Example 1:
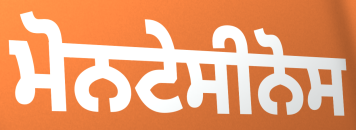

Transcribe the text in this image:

ਮੋਨਟੇਸੀਨੋਸ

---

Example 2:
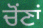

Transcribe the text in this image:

ਚੋਂਣਾਂ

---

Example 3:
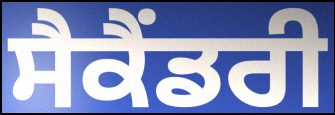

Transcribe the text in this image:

ਸੈਕੈਂਡਰੀ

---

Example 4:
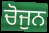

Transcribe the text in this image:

ਚੋਜੁਨ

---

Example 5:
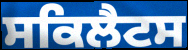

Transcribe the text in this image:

ਸਕਿਲੈਟਸ